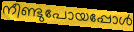
നീണ്ടുപോയപ്പോൾ